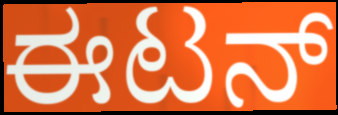
ಈಟನ್